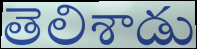
తెలిశాడు